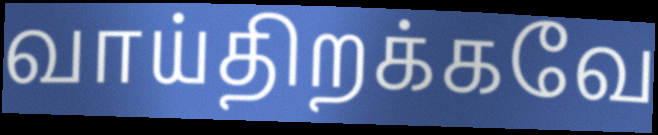
வாய்திறக்கவே